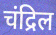
चंद्रिल